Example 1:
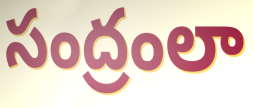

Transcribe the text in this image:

సంద్రంలా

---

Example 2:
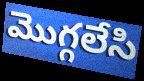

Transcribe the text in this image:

మొగ్గలేసి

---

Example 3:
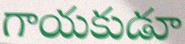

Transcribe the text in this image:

గాయకుడూ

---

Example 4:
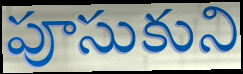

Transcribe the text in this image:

పూసుకుని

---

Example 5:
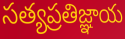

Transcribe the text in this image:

సత్యప్రతిజ్ఞాయ